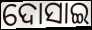
ଦୋସାଇ